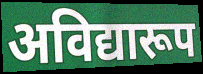
अविद्यारूप